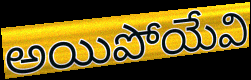
అయిపోయేవి